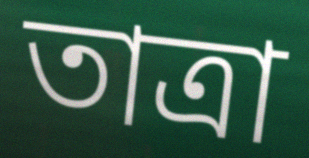
তাত্রা